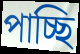
পাচ্ছি